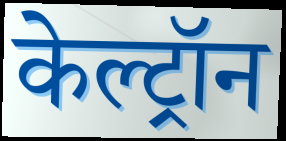
केल्ट्रॉन